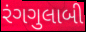
રંગગુલાબી